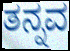
ತನ್ನವ